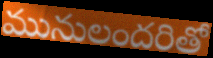
మునులందరితో